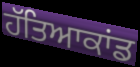
ਹੱਤਿਆਕਾਂਡ